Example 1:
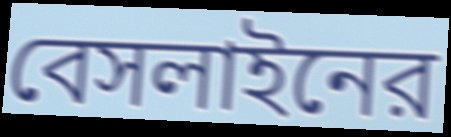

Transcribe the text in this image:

বেসলাইনের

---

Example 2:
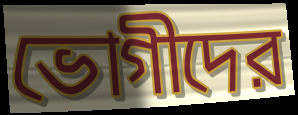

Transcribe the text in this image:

ভোগীদের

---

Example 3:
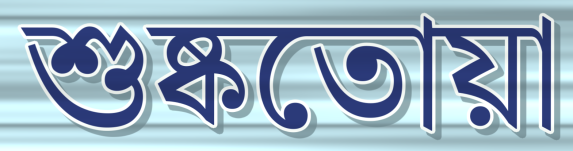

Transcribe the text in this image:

শুষ্কতোয়া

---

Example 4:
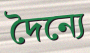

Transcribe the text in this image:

দৈন্যে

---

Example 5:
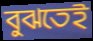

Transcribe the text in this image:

বুঝতেই